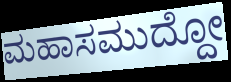
ಮಹಾಸಮುದ್ದೋ